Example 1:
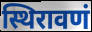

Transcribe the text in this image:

स्थिरावणं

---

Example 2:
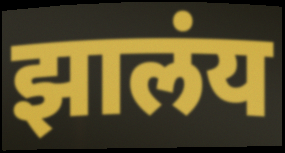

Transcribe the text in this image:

झालंय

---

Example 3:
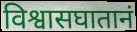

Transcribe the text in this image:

विश्वासघातानं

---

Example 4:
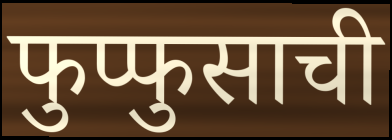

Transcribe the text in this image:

फुप्फुसाची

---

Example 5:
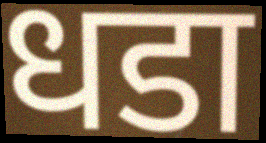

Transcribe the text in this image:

धडा